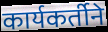
कार्यकर्तीने